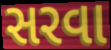
સરવા